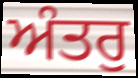
ਅੰਤਰੁ